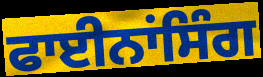
ਫਾਈਨਾਂਸਿੰਗ